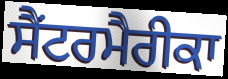
ਸੈਂਟਰਮੈਰੀਕਾ